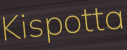
Kispotta